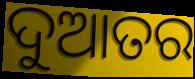
ଦୁଆତର